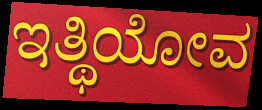
ಇತ್ಥಿಯೋವ